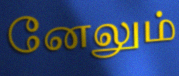
னேலும்